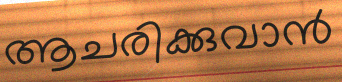
ആചരിക്കുവാൻ